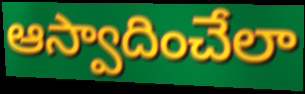
ఆస్వాదించేలా